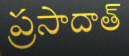
ప్రసాదాత్